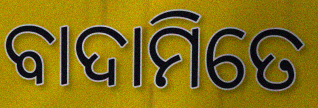
ବାଦାମିତେ